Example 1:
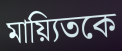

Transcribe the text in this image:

মায়্যিতকে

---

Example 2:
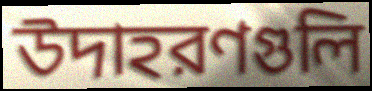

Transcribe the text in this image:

উদাহরণগুলি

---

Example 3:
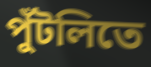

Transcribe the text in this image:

পুঁটলিতে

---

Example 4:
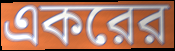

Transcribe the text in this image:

একরের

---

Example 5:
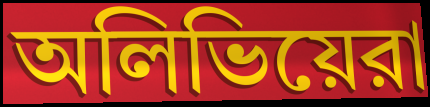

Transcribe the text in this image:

অলিভিয়েরা